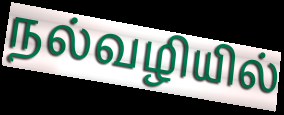
நல்வழியில்